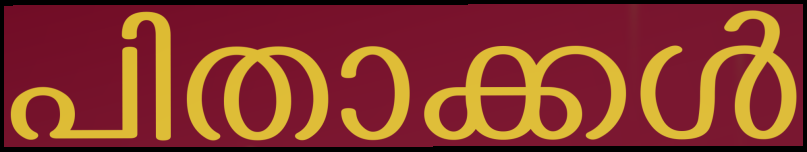
പിതാക്കൾ